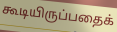
கூடியிருப்பதைக்